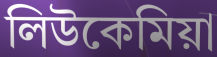
লিউকেমিয়া